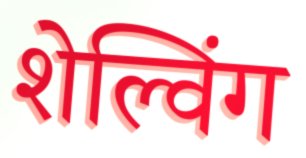
शेल्विंग